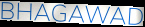
BHAGAWAD